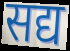
सद्य